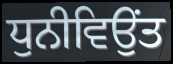
ਧੁਨੀਵਿਉਂਤ